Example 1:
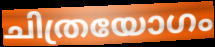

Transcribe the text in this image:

ചിത്രയോഗം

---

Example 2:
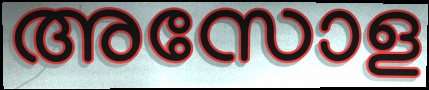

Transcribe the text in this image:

അസോള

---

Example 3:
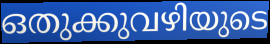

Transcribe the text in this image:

ഒതുക്കുവഴിയുടെ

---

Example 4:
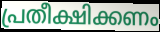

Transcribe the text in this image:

പ്രതീക്ഷിക്കണം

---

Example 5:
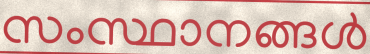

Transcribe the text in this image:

സംസ്ഥാനങ്ങൾ